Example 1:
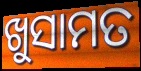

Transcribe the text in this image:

ଖୁସାମତ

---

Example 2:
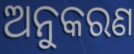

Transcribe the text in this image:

ଅନୁକରଣ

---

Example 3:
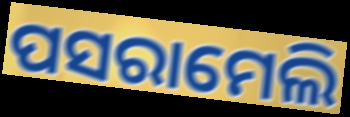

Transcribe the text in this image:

ପସରାମେଲି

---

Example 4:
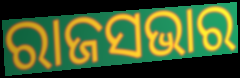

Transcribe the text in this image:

ରାଜସଭାର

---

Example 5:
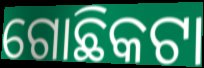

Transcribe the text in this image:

ଗୋଛିକଟା